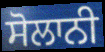
ਸੋਲਾਨੀ